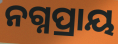
ନଗ୍ନପ୍ରାୟ